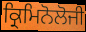
ਕ੍ਰਿਮਿਨੋਲੋਜੀ